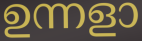
ഉന്നളാ